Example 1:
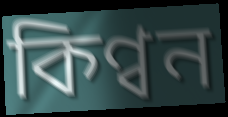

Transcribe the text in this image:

কিণ্বন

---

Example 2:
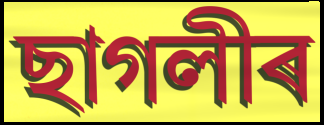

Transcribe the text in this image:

ছাগলীৰ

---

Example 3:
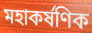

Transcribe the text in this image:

মহাকৰ্ষণিক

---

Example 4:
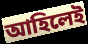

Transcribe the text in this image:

আহিলেই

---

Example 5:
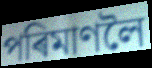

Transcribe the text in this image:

পৰিমাণলৈ